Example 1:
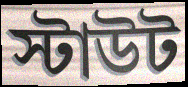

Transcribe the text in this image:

স্টাউট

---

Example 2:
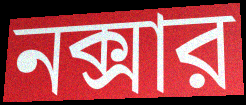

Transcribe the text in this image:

নক্সার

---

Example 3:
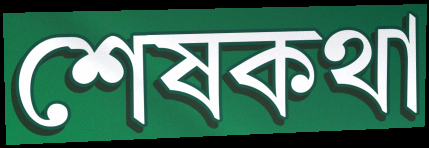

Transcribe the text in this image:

শেষকথা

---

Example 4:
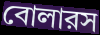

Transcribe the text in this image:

বোলারস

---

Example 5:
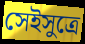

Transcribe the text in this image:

সেইসুত্রে